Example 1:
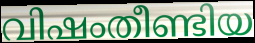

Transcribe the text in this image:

വിഷംതീണ്ടിയ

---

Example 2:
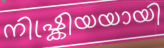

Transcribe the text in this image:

നിഷ്ക്രിയയായി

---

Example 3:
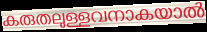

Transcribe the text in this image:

കരുതലുള്ളവനാകയാൽ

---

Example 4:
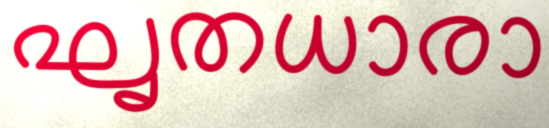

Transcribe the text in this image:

ഘൃതധാരാ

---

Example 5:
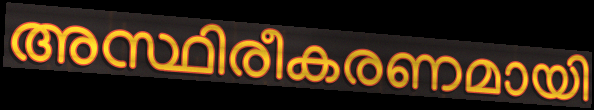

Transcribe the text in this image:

അസ്ഥിരീകരണമായി